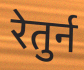
रेतुर्न